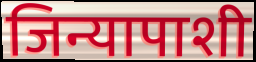
जिन्यापाशी